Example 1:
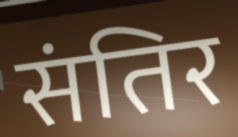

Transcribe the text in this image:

संतिर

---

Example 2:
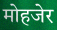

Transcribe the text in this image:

मोहजेर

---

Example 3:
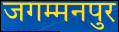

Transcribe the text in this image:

जगम्मनपुर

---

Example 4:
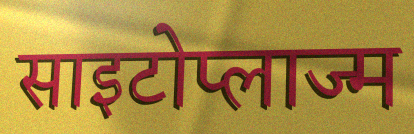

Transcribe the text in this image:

साइटोप्लाज्म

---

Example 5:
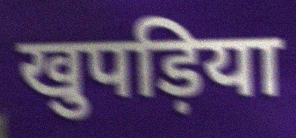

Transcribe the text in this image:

खुपड़िया